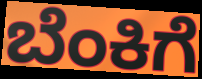
ಬೆಂಕಿಗೆ